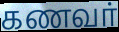
கணவர்